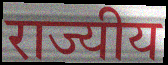
राज्यीय